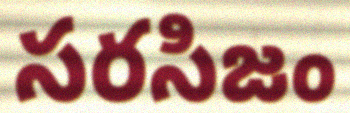
సరసిజం